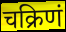
चक्रिणं